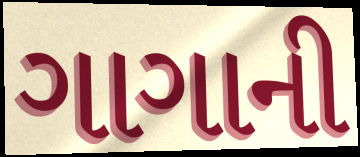
ગાગાની